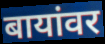
बायांवर